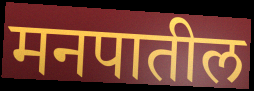
मनपातील